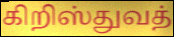
கிறிஸ்துவத்